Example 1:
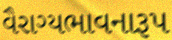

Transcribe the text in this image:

વૈરાગ્યભાવનારૂપ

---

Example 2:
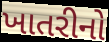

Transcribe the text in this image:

ખાતરીનો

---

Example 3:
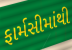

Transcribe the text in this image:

ફાર્મસીમાંથી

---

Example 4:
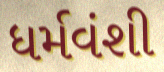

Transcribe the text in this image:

ધર્મવંશી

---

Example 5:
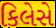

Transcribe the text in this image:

કિલેસે